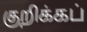
குறிக்கப்